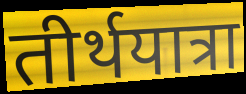
तीर्थयात्रा